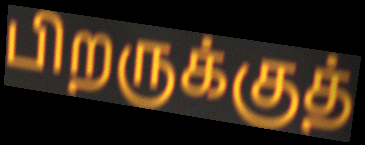
பிறருக்குத்